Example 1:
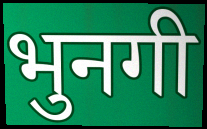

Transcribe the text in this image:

भुनगी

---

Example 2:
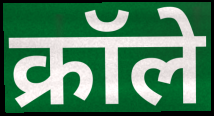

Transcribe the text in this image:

क्रॉले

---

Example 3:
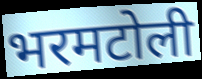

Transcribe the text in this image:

भरमटोली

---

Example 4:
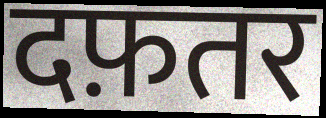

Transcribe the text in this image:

दफ़तर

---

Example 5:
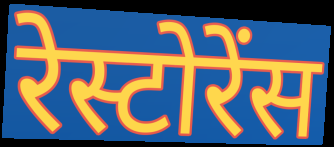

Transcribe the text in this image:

रेस्टोरेंस